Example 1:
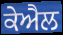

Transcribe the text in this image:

ਕੇਐਲ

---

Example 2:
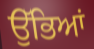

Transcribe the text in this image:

ਉੱਭਿਆਂ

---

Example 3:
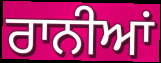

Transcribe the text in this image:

ਰਾਨੀਆਂ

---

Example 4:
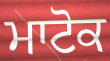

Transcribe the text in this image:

ਮਾਟੋਕ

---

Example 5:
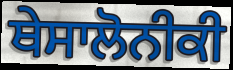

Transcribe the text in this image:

ਥੇਸਾਲੋਨੀਕੀ